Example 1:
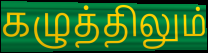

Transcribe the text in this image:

கழுத்திலும்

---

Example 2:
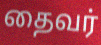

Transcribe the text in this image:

தைவர்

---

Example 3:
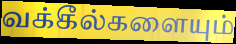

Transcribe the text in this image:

வக்கீல்களையும்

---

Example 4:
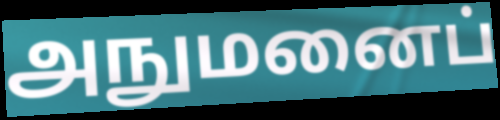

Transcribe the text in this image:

அநுமனைப்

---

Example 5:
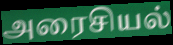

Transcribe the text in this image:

அரைசியல்